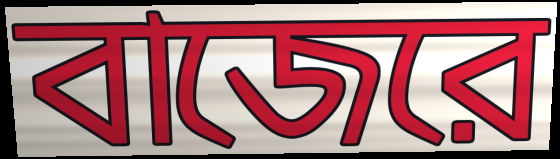
বাজেরে